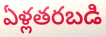
ఏళ్లతరబడి